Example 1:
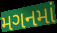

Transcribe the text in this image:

મગનમાં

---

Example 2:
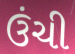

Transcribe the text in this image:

ઉંચી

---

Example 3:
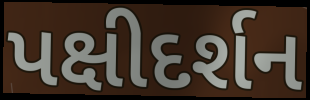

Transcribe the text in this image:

પક્ષીદર્શન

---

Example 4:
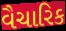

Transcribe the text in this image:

વૈચારિક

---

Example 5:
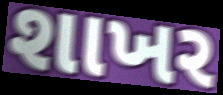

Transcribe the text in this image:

શાખર